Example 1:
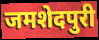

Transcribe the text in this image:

जमशेदपुरी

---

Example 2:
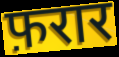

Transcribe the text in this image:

फ़रार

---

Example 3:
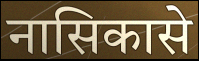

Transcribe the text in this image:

नासिकासे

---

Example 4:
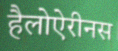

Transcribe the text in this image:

हैलोऐरीनस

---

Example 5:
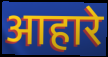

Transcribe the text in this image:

आहारे